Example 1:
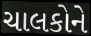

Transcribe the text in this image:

ચાલકોને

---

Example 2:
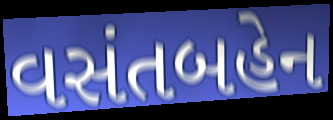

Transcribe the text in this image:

વસંતબહેન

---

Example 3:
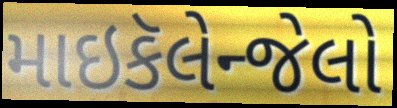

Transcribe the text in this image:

માઇકૅલેન્જેલો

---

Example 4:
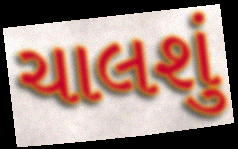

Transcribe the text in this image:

ચાલશું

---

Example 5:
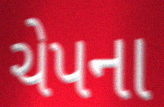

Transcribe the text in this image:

ચેપના